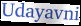
Udayavni